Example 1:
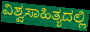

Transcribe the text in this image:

ವಿಶ್ವಸಾಹಿತ್ಯದಲ್ಲಿ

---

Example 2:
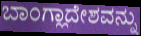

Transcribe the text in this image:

ಬಾಂಗ್ಲಾದೇಶವನ್ನು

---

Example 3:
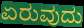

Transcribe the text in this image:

ಏರುವುದು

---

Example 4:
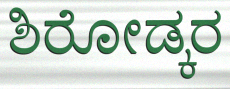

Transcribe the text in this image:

ಶಿರೋಡ್ಕರ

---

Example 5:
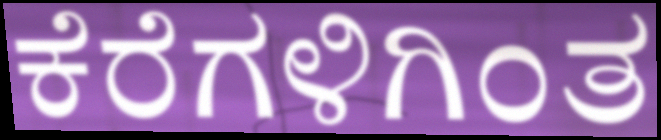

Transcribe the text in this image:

ಕೆರೆಗಳಿಗಿಂತ